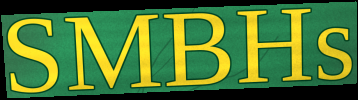
SMBHs